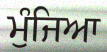
ਮੁੰਜਿਆ